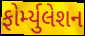
ફોર્મ્યુલેશન